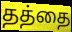
தத்தை